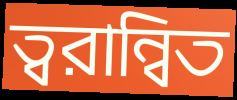
ত্বরান্বিত